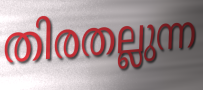
തിരതല്ലുന്ന